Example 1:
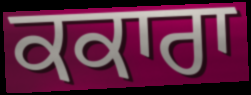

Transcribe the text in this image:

ਕਕਾਰਾ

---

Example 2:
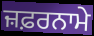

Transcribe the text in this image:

ਜ਼ਫ਼ਰਨਾਮੇ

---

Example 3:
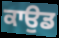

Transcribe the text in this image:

ਕਾਉਡ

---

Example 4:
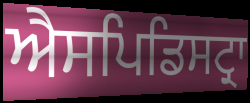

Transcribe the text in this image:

ਐਸਪਿਡਿਸਟ੍ਰਾ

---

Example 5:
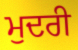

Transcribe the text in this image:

ਮੁਦਰੀ